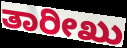
ತಾರೀಖು